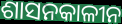
ଶାସନକାଳୀନ